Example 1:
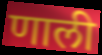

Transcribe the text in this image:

णाली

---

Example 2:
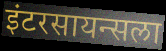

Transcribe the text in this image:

इंटरसायन्सला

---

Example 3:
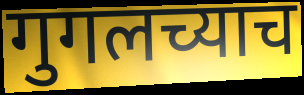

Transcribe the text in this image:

गुगलच्याच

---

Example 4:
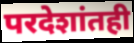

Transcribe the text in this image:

परदेशांतही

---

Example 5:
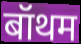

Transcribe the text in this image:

बॉथम